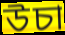
উচা